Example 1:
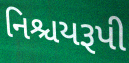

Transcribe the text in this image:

નિશ્ચયરૂપી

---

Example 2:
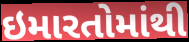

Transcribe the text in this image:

ઇમારતોમાંથી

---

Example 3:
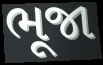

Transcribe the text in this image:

ભૂજા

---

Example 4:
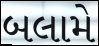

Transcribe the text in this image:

બલામે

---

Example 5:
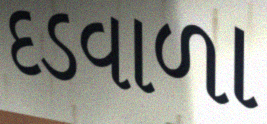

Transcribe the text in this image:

દડવાળા